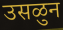
उसळुन